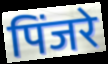
पिंजरे